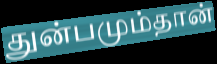
துன்பமும்தான்